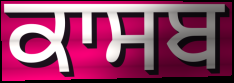
ਕਾਸਬ